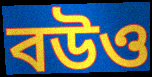
বউও